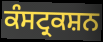
ਕੰਸਟ੍ਰਕਸ਼ਨ